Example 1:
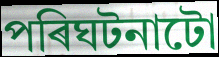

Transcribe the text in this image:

পৰিঘটনাটো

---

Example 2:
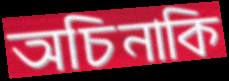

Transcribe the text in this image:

অচিনাকি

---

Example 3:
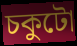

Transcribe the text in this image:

চকুটো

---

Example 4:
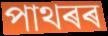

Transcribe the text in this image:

পাথৰৰ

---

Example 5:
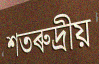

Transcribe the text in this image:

শতৰুদ্ৰীয়